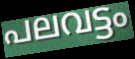
പലവട്ടം